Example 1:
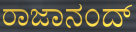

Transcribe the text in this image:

ರಾಜಾನಂದ್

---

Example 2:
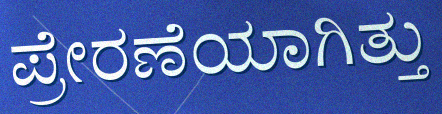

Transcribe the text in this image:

ಪ್ರೇರಣೆಯಾಗಿತ್ತು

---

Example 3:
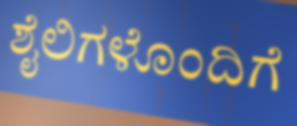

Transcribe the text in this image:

ಶೈಲಿಗಳೊಂದಿಗೆ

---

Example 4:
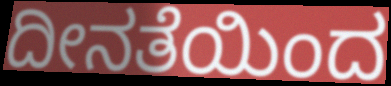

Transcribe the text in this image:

ದೀನತೆಯಿಂದ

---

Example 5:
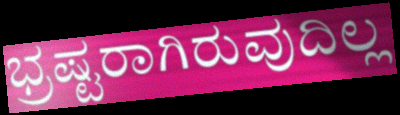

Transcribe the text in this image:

ಭ್ರಷ್ಟರಾಗಿರುವುದಿಲ್ಲ